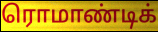
ரொமாண்டிக்